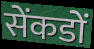
सेंकडों